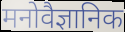
मनोवैज्ञानिक